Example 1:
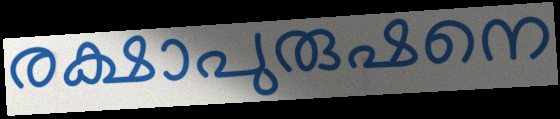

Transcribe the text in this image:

രക്ഷാപുരുഷനെ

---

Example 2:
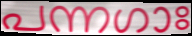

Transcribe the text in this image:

പന്നഗാഃ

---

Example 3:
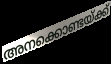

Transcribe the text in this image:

അനക്കൊണ്ടയ്ക്ക്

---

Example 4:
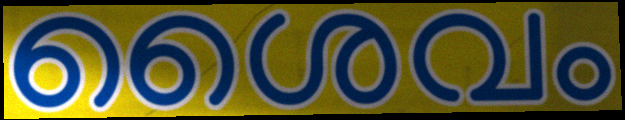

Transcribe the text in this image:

ശൈവം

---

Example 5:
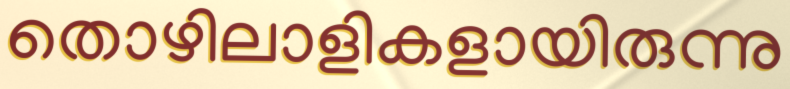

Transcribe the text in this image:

തൊഴിലാളികളായിരുന്നു